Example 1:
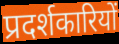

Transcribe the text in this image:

प्रदर्शकारियों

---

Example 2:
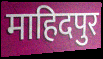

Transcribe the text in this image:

माहिदपुर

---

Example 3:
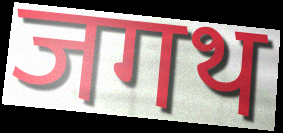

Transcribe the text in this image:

जगथ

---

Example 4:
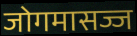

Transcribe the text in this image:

जोगमासज्ज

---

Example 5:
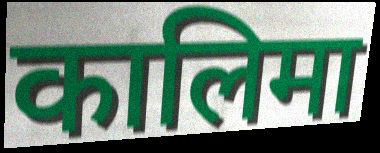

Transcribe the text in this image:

कालिमा